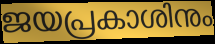
ജയപ്രകാശിനും